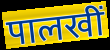
पालखीं